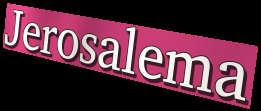
Jerosalema